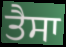
ਤੈਸਾ